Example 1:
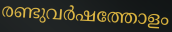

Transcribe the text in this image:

രണ്ടുവർഷത്തോളം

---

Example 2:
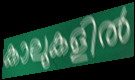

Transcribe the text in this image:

കാലുകളിൽ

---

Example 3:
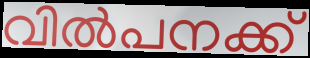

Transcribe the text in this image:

വിൽപനക്ക്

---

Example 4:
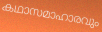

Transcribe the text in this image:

കഥാസമാഹാരവും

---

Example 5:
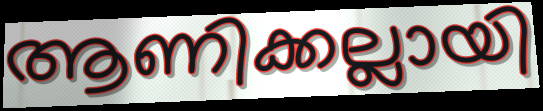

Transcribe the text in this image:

ആണിക്കല്ലായി